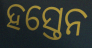
ହସ୍ତେନ